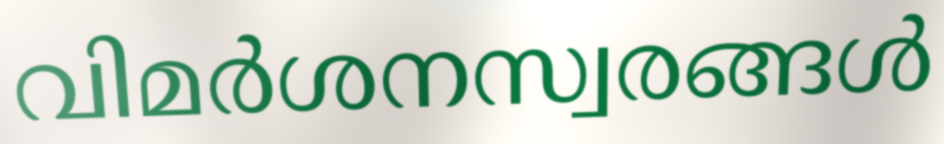
വിമർശനസ്വരങ്ങൾ